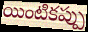
యింటికప్పు